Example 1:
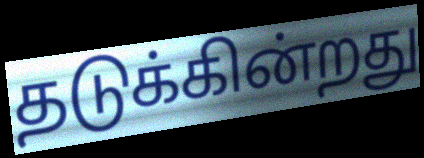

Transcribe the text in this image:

தடுக்கின்றது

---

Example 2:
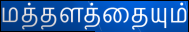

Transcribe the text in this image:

மத்தளத்தையும்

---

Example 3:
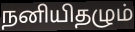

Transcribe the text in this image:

நனியிதழும்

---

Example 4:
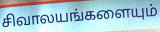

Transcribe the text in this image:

சிவாலயங்களையும்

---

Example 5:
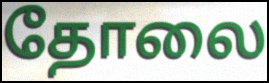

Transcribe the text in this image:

தோலை